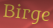
Birge